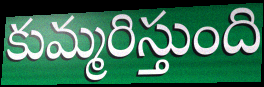
కుమ్మరిస్తుంది